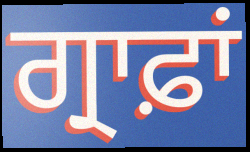
ਗ੍ਰਾਫ਼ਾਂ